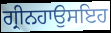
ਗ੍ਰੀਨਹਾਉਸਇਹ